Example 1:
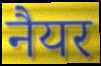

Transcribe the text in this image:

नैयर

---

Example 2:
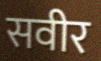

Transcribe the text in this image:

सवीर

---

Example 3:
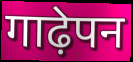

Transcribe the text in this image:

गाढ़ेपन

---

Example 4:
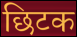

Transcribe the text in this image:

छिटक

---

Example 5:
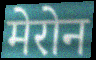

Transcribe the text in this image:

मेरोन